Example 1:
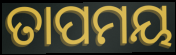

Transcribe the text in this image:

ତାପମୟ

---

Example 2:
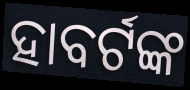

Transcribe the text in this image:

ହାବର୍ଟଙ୍କ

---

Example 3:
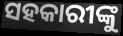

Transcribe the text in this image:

ସହକାରୀଙ୍କୁ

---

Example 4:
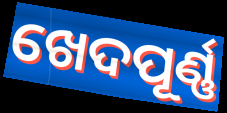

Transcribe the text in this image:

ଖେଦପୂର୍ଣ୍ଣ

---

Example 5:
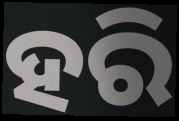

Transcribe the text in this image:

ହରି